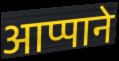
आप्पाने